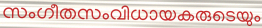
സംഗീതസംവിധായകരുടെയും